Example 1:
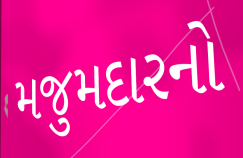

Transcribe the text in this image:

મજુમદારનો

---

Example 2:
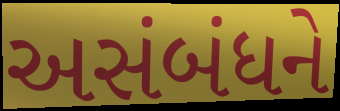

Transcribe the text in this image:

અસંબંધને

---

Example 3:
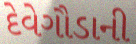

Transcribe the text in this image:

દેવેગૌડાની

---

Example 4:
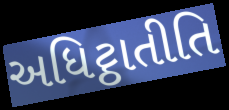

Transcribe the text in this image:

અધિટ્ઠાતીતિ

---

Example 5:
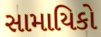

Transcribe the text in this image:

સામાયિકો